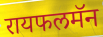
रायफलमॅन